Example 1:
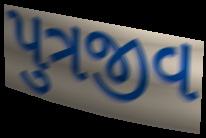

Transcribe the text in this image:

પુત્રજીવ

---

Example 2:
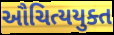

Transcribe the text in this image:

ઔચિત્યયુક્ત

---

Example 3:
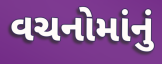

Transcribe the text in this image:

વચનોમાંનું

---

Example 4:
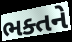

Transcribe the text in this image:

ભક્તને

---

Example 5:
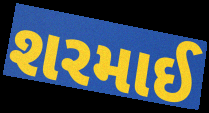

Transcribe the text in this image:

શરમાઈ